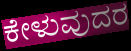
ಕೇಳುವುದರ